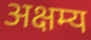
अक्षम्य